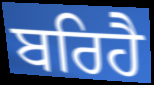
ਬਰਿਹੈ